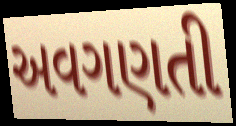
અવગણતી